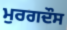
ਮੁਰਗਦੌਸ